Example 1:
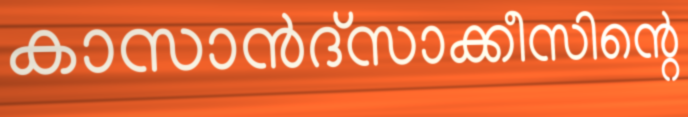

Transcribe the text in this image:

കാസാൻദ്സാക്കീസിന്റെ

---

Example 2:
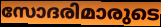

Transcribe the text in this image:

സോദരിമാരുടെ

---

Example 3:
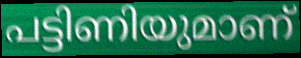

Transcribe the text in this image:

പട്ടിണിയുമാണ്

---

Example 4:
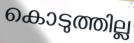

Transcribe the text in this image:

കൊടുത്തില്ല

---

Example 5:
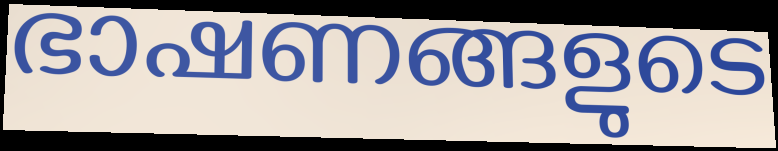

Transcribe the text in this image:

ഭാഷണങ്ങളുടെ